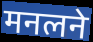
मनलने